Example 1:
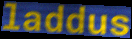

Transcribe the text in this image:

laddus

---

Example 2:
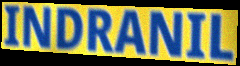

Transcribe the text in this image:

INDRANIL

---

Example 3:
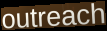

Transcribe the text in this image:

outreach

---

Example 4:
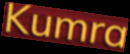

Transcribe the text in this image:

Kumra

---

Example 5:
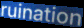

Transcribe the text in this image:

ruination